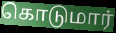
கொடுமார்